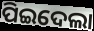
ପିଇଦେଲା